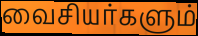
வைசியர்களும்